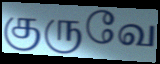
குருவே